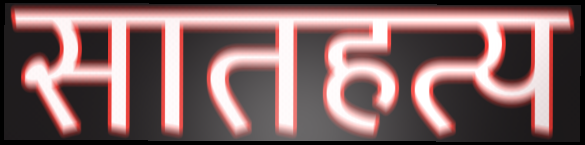
सातहत्य